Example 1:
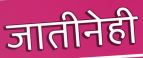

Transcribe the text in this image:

जातीनेही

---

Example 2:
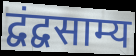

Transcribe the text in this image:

द्वंद्वसाम्य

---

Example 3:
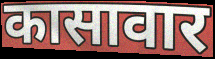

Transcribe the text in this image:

कासावार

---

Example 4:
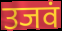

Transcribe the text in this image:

उजवं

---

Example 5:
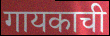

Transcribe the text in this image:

गायकाची